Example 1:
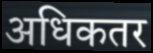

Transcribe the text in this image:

अधिकतर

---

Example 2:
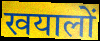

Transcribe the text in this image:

खयालों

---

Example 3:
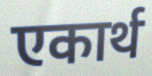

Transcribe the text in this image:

एकार्थ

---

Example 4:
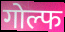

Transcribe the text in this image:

गोल्फ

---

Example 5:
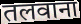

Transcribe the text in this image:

तलवाना